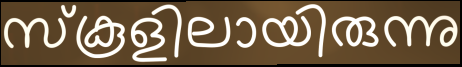
സ്കൂളിലായിരുന്നു